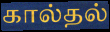
கால்தல்